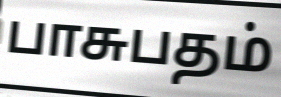
பாசுபதம்